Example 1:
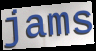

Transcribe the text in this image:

jams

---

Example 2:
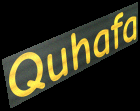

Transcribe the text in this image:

Quhafa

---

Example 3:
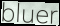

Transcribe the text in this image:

bluer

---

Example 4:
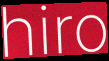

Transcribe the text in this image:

hiro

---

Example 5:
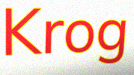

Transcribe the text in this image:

Krog